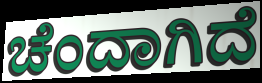
ಚೆಂದಾಗಿದೆ